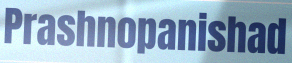
Prashnopanishad